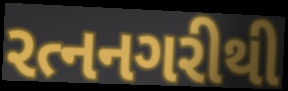
રત્નનગરીથી